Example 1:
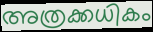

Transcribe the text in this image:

അത്രക്കധികം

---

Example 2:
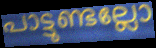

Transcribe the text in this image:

പാട്ടുണ്ടല്ലോ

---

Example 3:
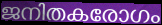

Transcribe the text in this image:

ജനിതകരോഗം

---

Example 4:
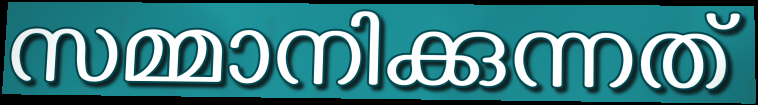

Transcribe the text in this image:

സമ്മാനിക്കുന്നത്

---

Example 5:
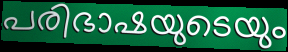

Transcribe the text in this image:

പരിഭാഷയുടെയും